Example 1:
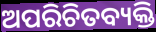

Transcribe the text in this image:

ଅପରିଚିତବ୍ୟକ୍ତି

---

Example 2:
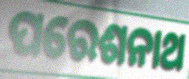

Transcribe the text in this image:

ପରେଶନାଥ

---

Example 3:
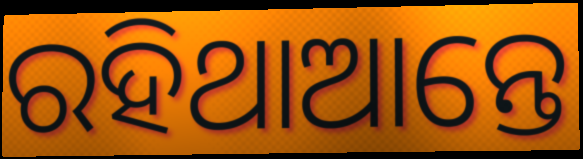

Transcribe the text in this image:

ରହିଥାଆନ୍ତେ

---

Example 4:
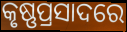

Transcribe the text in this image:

କୃଷ୍ଣପ୍ରସାଦରେ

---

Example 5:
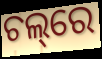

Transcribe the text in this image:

ଚଲ୍‌ରେ